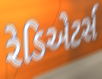
રેડિએટર્સ